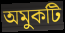
অমুকটি